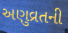
અણુવ્રતની